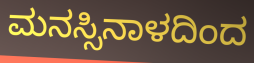
ಮನಸ್ಸಿನಾಳದಿಂದ